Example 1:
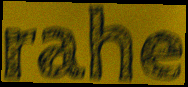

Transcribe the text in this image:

rahe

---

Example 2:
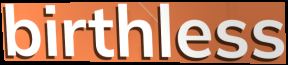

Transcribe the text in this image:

birthless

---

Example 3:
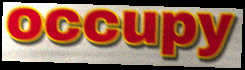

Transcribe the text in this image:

occupy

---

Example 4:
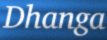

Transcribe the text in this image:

Dhanga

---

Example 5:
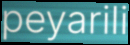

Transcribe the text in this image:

peyarili